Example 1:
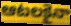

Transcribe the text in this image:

ఆటలకైనా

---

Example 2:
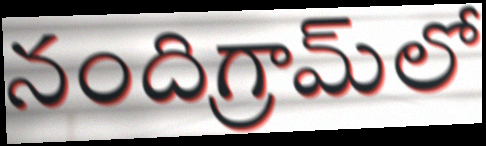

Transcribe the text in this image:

నందిగ్రామ్‌లో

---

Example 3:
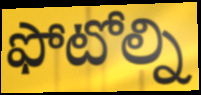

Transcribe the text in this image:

ఫోటోల్ని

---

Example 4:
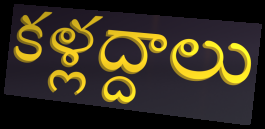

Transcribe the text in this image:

కళ్లద్దాలు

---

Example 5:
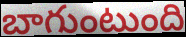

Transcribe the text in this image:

బాగుంటుంది